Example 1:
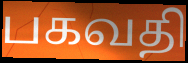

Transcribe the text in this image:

பகவதி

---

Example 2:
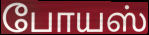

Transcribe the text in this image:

போயஸ்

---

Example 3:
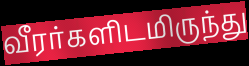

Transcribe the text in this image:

வீரர்களிடமிருந்து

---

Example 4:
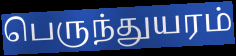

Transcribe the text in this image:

பெருந்துயரம்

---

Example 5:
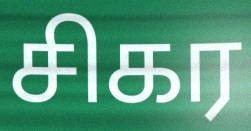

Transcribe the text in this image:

சிகர